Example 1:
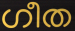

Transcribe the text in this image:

ഗീത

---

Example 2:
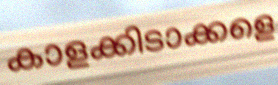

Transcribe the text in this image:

കാളക്കിടാക്കളെ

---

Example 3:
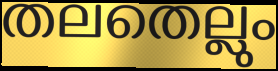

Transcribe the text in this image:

തലതെല്ലും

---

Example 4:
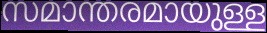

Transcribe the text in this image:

സമാന്തരമായുള്ള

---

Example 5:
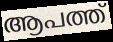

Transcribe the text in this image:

ആപത്ത്